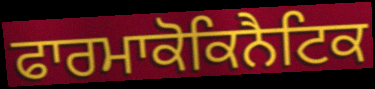
ਫਾਰਮਾਕੋਕਿਨੈਟਿਕ